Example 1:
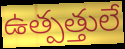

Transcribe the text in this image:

ఉత్పత్తులే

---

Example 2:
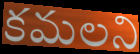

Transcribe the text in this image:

కమలని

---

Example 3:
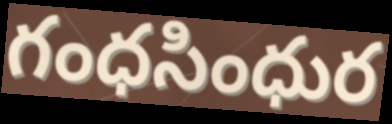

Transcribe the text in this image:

గంధసింధుర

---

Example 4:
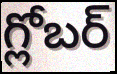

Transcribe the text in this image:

గ్లోబర్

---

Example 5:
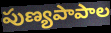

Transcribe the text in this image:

పుణ్యపాపాల